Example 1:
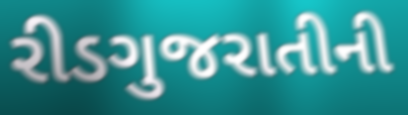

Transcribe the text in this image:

રીડગુજરાતીની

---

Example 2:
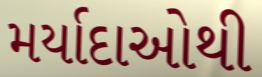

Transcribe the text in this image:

મર્યાદાઓથી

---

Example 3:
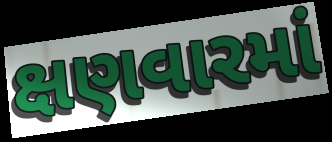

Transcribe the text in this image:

ક્ષણવારમાં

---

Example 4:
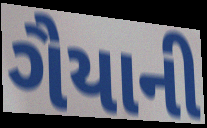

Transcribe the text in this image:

ગૈયાની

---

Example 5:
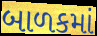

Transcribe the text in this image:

બાળકમાં